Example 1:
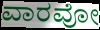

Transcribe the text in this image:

ವಾರವೋ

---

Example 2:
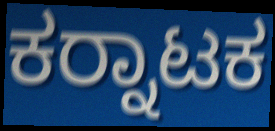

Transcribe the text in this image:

ಕರ‍್ನಾಟಕ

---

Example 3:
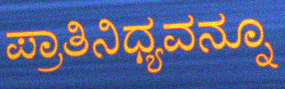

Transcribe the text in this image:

ಪ್ರಾತಿನಿಧ್ಯವನ್ನೂ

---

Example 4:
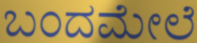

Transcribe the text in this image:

ಬಂದಮೇಲೆ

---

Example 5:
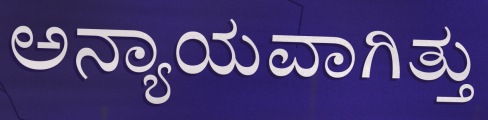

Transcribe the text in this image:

ಅನ್ಯಾಯವಾಗಿತ್ತು